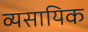
व्यसायिक